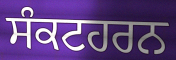
ਸੰਕਟਹਰਨ